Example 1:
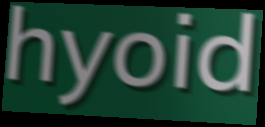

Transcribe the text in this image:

hyoid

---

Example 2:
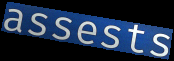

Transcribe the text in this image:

assests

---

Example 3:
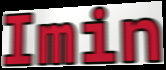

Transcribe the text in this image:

Imin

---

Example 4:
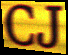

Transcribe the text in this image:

CJ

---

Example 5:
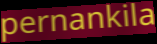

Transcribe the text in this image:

pernankila